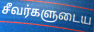
சீவர்களுடைய